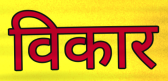
विकार